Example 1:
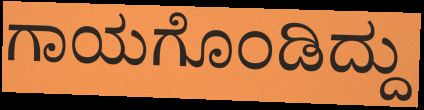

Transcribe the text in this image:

ಗಾಯಗೊಂಡಿದ್ದು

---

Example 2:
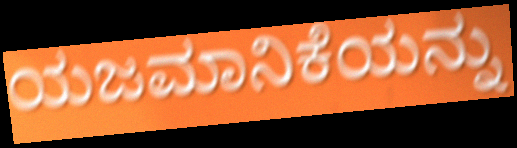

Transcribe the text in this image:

ಯಜಮಾನಿಕೆಯನ್ನು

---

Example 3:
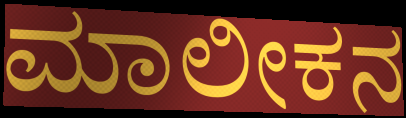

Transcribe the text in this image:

ಮಾಲೀಕನ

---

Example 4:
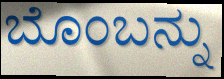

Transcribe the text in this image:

ಬೊಂಬನ್ನು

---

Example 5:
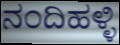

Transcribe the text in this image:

ನಂದಿಹಳ್ಳಿ